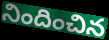
నిందించిన